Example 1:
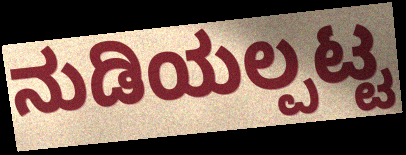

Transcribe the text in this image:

ನುಡಿಯಲ್ಪಟ್ಟ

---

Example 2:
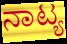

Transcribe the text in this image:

ನಾಟ್ಯ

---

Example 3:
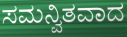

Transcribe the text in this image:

ಸಮನ್ವಿತವಾದ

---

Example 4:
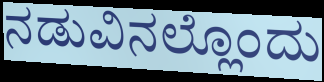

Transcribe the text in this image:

ನಡುವಿನಲ್ಲೊಂದು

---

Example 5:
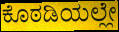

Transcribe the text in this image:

ಕೊಠಡಿಯಲ್ಲೇ